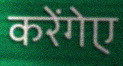
करेंगेए